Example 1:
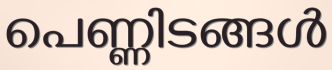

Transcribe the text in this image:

പെണ്ണിടങ്ങൾ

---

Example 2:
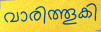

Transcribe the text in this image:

വാരിത്തൂകി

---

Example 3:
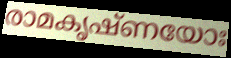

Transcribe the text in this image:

രാമകൃഷ്ണയോഃ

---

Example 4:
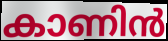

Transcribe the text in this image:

കാണിൻ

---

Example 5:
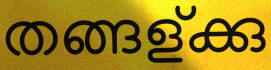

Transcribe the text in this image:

തങ്ങള്ക്കു